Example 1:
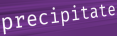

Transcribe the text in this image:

precipitate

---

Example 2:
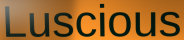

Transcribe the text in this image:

Luscious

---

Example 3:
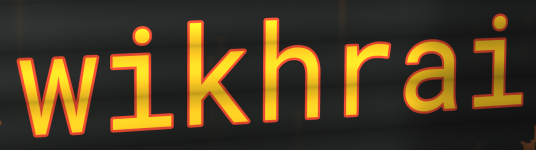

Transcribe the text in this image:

wikhrai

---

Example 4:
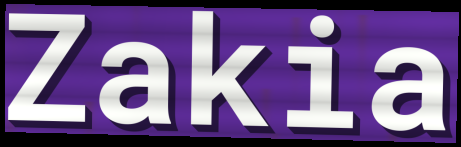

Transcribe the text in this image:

Zakia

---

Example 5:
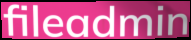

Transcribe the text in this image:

fileadmin